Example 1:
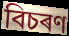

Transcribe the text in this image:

বিচৰণ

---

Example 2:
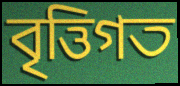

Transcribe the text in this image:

বৃত্তিগত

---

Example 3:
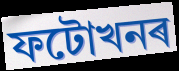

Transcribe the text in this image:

ফটোখনৰ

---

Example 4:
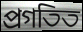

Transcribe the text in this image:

প্ৰগতিত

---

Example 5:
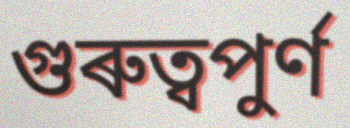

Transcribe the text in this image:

গুৰুত্বপুৰ্ণ